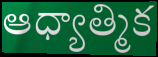
ఆధ్యాత్మిక